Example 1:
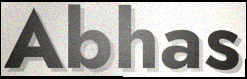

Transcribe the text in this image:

Abhas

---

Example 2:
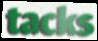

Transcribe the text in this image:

tacks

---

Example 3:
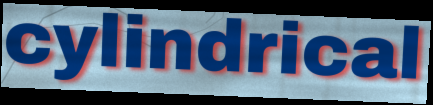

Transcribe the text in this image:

cylindrical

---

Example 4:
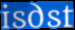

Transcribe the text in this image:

isdst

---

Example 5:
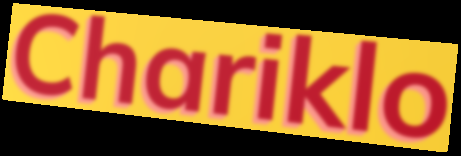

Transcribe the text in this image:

Chariklo